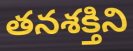
తనశక్తిని